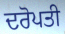
ਦਰੋਪਤੀ